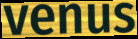
venus